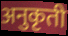
अनुकृती